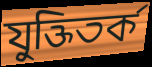
যুক্তিতর্ক